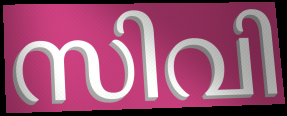
സിവി